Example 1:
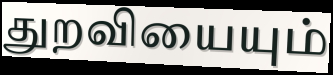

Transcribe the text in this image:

துறவியையும்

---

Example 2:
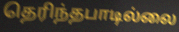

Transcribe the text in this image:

தெரிந்தபாடில்லை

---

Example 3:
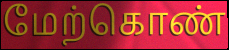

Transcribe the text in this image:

மேற்கொண்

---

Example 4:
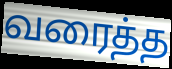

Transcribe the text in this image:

வரைத்த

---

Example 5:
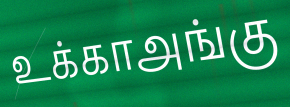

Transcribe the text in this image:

உக்காஅங்கு